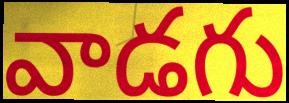
వాడగు